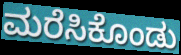
ಮರೆಸಿಕೊಂಡು